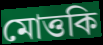
মোত্তকি